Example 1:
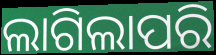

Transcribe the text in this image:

ଲାଗିଲାପରି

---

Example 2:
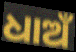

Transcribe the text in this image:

ଧାଅଁ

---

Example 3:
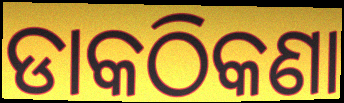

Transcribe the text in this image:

ଡାକଠିକଣା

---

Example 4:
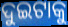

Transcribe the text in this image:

ଦୁଇଟାକୁ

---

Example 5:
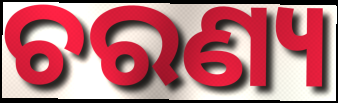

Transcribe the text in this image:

ଚରଣ୍ୟ